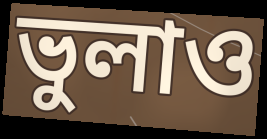
ভুলাও